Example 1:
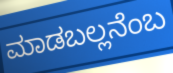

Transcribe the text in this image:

ಮಾಡಬಲ್ಲನೆಂಬ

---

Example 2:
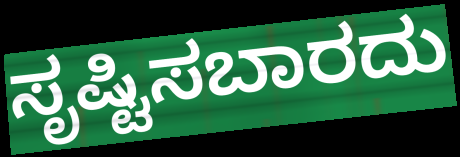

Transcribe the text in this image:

ಸೃಷ್ಟಿಸಬಾರದು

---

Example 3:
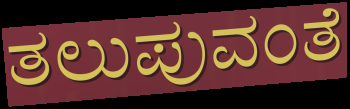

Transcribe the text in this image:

ತಲುಪುವಂತೆ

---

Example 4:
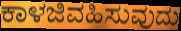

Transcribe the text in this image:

ಕಾಳಜಿವಹಿಸುವುದು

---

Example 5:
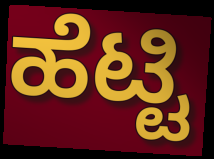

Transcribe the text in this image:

ಹೆಟ್ಟಿ